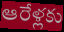
ఆరేళ్లకు